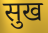
सुख